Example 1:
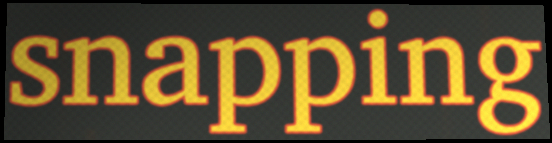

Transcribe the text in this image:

snapping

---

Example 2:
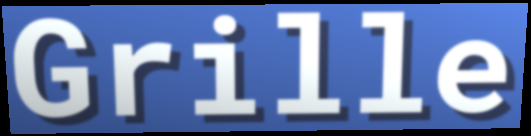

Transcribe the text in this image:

Grille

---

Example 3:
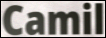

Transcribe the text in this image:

Camil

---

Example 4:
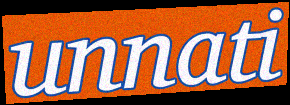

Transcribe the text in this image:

unnati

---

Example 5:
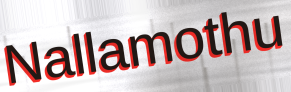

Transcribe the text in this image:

Nallamothu